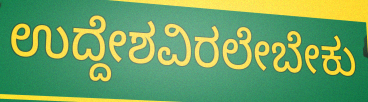
ಉದ್ದೇಶವಿರಲೇಬೇಕು